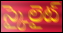
స్కైలైట్